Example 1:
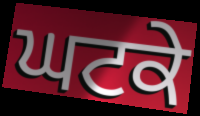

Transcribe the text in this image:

ਘਟਕੇ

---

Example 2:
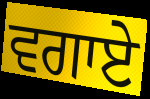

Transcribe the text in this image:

ਵਗਾਏ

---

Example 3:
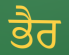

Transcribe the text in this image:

ਭੈਰ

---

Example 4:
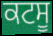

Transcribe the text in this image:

ਕਟਸੂ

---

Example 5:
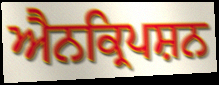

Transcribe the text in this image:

ਐਨਕ੍ਰਿਪਸ਼ਨ